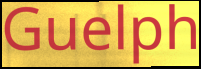
Guelph